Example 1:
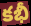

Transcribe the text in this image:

కభీ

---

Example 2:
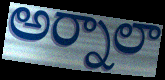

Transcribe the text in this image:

అర్నాలా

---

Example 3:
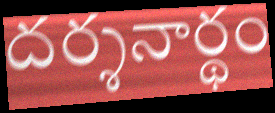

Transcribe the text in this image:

దర్శనార్థం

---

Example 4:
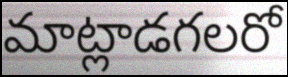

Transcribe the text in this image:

మాట్లాడగలరో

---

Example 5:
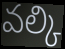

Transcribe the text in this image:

వల్కి